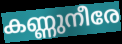
കണ്ണുനീരേ